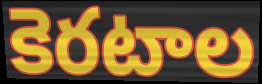
కెరటాల